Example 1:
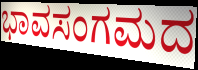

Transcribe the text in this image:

ಭಾವಸಂಗಮದ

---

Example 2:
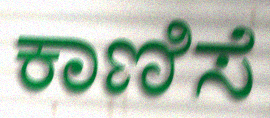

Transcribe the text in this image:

ಕಾಣಿಸೆ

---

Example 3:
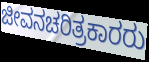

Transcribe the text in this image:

ಜೀವನಚರಿತ್ರಕಾರರು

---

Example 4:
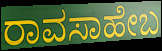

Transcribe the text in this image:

ರಾವಸಾಹೇಬ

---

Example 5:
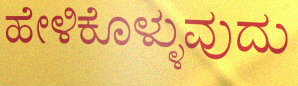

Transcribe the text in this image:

ಹೇಳಿಕೊಳ್ಳುವುದು